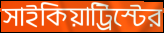
সাইকিয়াট্রিস্টের